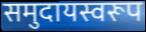
समुदायस्वरूप